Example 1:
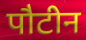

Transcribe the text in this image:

पौटीन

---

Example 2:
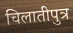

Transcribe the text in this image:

चिलातीपुत्र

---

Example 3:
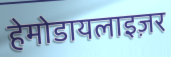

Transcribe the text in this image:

हेमोडायलाइज़र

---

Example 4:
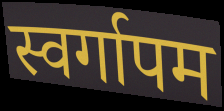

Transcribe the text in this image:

स्वर्गापम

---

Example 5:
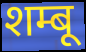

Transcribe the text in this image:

शम्बू